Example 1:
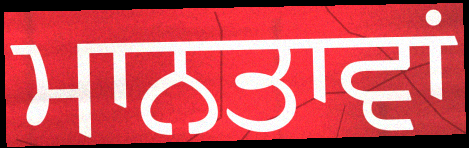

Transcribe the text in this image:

ਮਾਨਤਾਵਾਂ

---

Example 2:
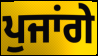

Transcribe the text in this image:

ਪੁਜਾਂਗੇ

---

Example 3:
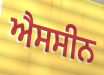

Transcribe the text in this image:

ਐਸਸੀਨ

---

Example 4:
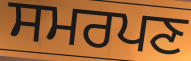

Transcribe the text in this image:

ਸਮਰਪਣ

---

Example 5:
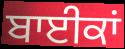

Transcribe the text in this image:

ਬਾਈਕਾਂ